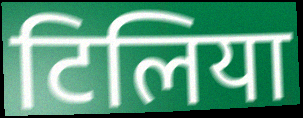
टिलिया